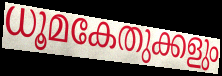
ധൂമകേതുക്കളും